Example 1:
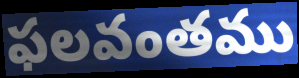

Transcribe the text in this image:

ఫలవంతము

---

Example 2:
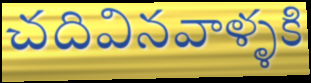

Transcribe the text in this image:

చదివినవాళ్ళకి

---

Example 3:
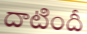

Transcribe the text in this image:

దాటిందీ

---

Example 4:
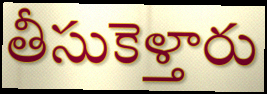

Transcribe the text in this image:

తీసుకెళ్తారు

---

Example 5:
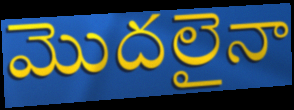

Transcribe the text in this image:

మొదలైనా